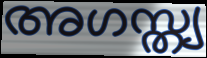
അഗസ്ത്യ